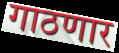
गाठणार